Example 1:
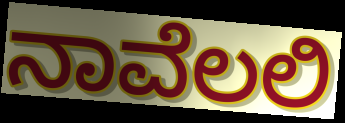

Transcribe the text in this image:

ನಾವೆಲಲಿ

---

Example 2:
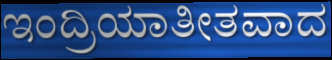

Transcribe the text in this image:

ಇಂದ್ರಿಯಾತೀತವಾದ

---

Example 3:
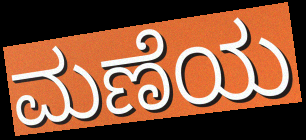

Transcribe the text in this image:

ಮಣೆಯ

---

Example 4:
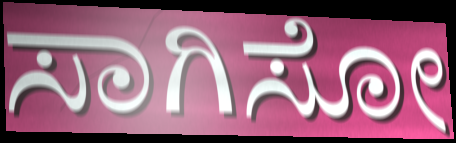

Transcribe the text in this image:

ಸಾಗಿಸೋ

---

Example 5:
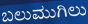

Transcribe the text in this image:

ಬಲುಮುಗಿಲು